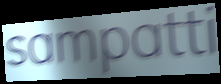
sampatti